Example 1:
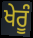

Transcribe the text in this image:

ਖੇਰੂੰ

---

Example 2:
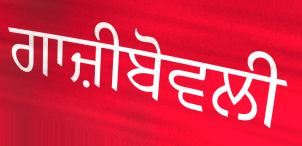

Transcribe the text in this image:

ਗਾਜ਼ੀਬੋਵਲੀ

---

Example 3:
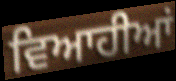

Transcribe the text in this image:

ਵਿਆਹੀਆਂ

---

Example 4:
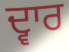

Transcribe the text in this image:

ਦ੍ਵਾਰ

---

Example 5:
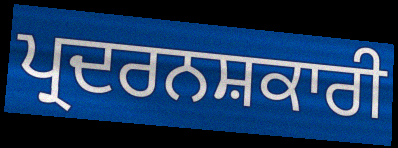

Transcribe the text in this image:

ਪ੍ਰਦਰਨਸ਼ਕਾਰੀ